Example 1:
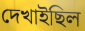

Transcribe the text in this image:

দেখাইছিল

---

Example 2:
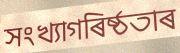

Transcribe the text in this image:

সংখ্যাগৰিষ্ঠতাৰ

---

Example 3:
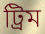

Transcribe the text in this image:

ট্ৰিম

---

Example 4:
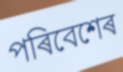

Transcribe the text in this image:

পৰিবেশেৰ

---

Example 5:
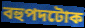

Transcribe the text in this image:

বহুপদটোক